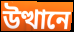
উত্থানে